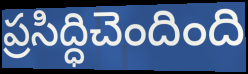
ప్రసిద్ధిచెందింది